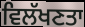
ਵਿਲੱਖਣਤਾ